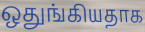
ஒதுங்கியதாக